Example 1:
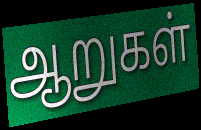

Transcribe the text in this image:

ஆறுகள்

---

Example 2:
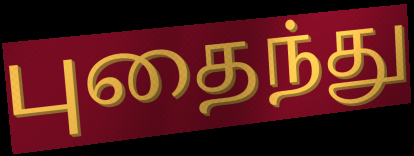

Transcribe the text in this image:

புதைந்து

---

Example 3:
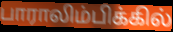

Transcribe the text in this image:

பாராலிம்பிக்கில்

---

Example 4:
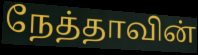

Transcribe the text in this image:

நேத்தாவின்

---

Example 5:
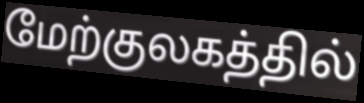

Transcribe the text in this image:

மேற்குலகத்தில்